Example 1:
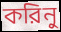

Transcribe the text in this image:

করিনু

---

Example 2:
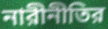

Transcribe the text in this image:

নারীনীতির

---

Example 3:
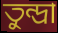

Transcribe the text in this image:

তুন্দ্রা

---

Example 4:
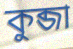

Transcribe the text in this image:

কুব্জা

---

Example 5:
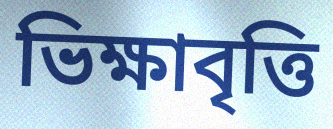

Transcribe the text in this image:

ভিক্ষাবৃত্তি